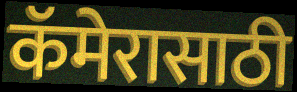
कॅमेरासाठी